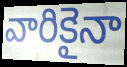
వారికైనా